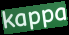
kappa